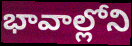
భావాల్లోని